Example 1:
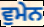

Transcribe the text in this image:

ਵੁਮੇਨ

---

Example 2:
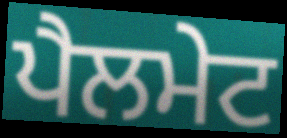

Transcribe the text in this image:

ਪੈਲਮੇਟ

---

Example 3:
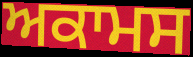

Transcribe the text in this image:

ਅਕਾਮਸ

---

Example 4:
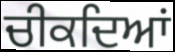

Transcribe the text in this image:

ਚੀਕਦਿਆਂ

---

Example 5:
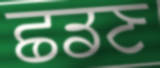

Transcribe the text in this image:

ਛਡਣ